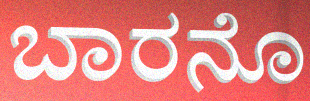
ಬಾರನೊ